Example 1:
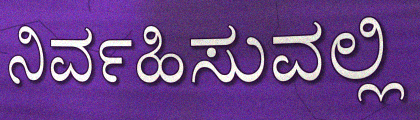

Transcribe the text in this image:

ನಿರ್ವಹಿಸುವಲ್ಲಿ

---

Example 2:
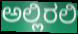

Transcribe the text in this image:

ಅಲ್ಲಿರಲಿ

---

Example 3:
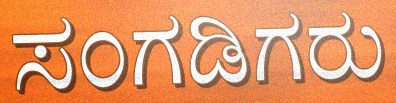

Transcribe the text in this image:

ಸಂಗಡಿಗರು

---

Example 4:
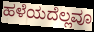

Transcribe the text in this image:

ಹಳೆಯದೆಲ್ಲವೂ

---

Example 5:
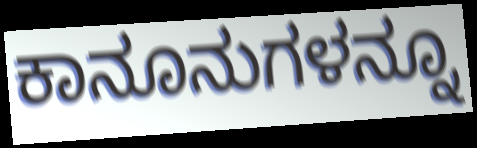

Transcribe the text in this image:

ಕಾನೂನುಗಳನ್ನೂ